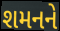
શમનને